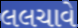
લલચાવે